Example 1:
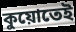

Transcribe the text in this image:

কুয়োতেই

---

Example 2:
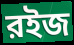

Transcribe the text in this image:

রইজ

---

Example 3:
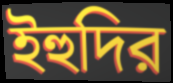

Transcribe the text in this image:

ইহুদির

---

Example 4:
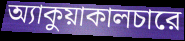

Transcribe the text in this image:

অ্যাকুয়াকালচারে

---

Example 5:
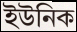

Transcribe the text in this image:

ইউনিক